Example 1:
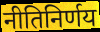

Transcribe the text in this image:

नीतिनिर्णय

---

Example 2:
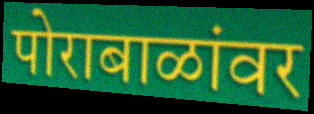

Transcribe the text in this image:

पोराबाळांवर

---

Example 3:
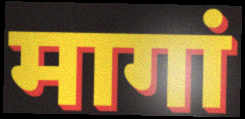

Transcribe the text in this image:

मागां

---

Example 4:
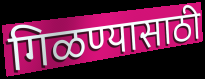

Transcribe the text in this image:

गिळण्यासाठी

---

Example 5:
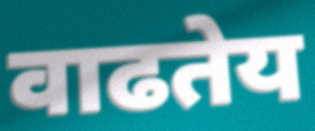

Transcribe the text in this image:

वाढतेय